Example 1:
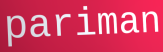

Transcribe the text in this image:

pariman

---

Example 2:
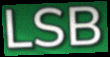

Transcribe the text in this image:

LSB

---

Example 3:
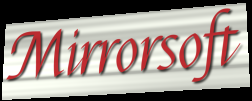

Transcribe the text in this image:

Mirrorsoft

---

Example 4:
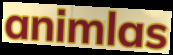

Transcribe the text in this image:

animlas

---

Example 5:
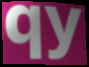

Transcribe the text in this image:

qy